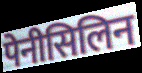
पेनीसिलिन